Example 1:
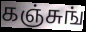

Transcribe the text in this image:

கஞ்சுங்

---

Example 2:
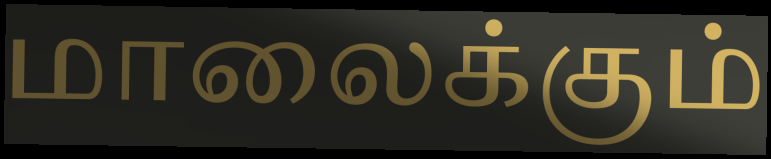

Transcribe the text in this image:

மாலைக்கும்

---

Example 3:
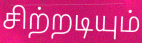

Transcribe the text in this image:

சிற்றடியும்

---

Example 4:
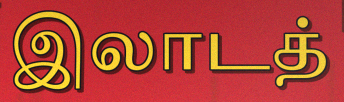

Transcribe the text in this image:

இலாடத்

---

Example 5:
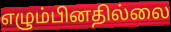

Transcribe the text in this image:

எழும்பினதில்லை